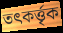
তৎকর্ত্তৃক